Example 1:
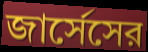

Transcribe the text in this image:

জার্সেসের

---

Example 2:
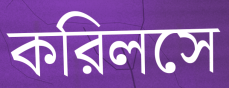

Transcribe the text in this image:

করিলসে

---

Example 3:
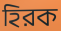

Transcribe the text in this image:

হিরক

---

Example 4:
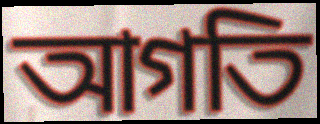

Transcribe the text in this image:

আগতি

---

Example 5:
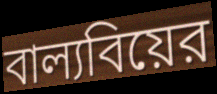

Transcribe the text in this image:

বাল্যবিয়ের